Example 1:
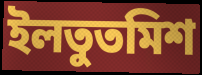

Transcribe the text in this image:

ইলতুতমিশ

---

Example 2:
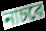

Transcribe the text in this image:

নাচবে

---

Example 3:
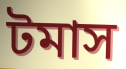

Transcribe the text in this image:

টমাস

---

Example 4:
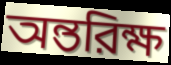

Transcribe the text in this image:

অন্তরিক্ষ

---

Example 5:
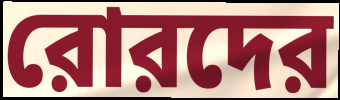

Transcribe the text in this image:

রোরদের